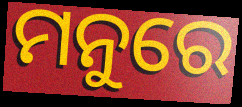
ମନୁରେ